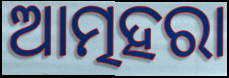
ଆତ୍ମହରା